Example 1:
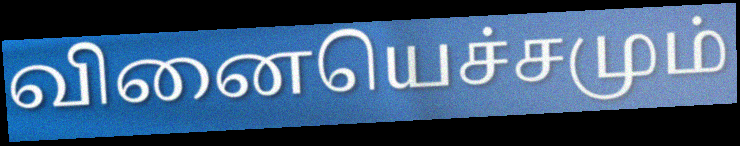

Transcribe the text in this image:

வினையெச்சமும்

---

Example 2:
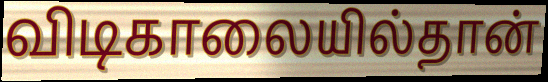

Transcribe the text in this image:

விடிகாலையில்தான்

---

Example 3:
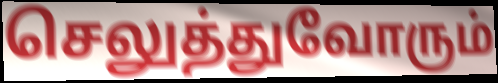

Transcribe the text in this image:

செலுத்துவோரும்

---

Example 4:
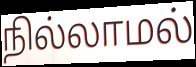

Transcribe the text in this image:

நில்லாமல்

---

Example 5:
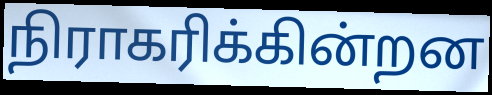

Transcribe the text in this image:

நிராகரிக்கின்றன